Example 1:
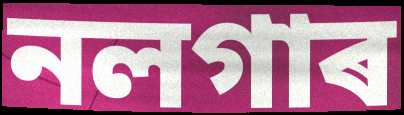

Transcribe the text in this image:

নলগাৰ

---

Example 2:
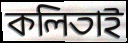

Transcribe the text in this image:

কলিতাই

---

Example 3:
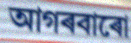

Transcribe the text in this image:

আগৰবাৰো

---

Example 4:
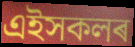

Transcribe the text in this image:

এইসকলৰ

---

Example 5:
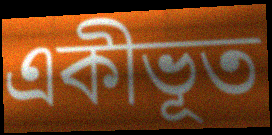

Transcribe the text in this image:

একীভূত